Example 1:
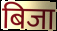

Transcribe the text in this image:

बिजा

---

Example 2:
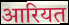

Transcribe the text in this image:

आरियत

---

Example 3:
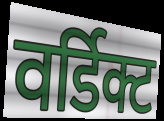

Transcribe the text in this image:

वर्डिक्ट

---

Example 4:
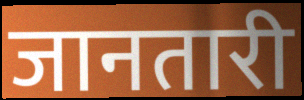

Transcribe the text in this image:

जानतारी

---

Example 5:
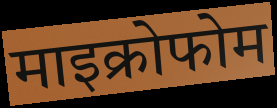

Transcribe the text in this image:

माइक्रोफोम